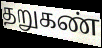
தறுகண்